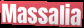
Massalia